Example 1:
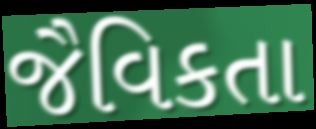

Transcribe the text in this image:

જૈવિકતા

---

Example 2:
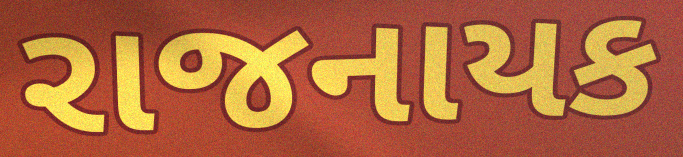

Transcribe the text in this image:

રાજનાયક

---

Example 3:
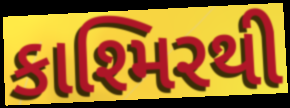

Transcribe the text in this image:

કાશ્મિરથી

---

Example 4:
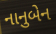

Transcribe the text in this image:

નાનુબેન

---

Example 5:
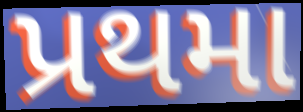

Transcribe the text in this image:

પ્રથમા